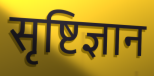
सृष्टिज्ञान